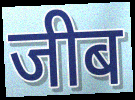
जीब